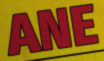
ANE